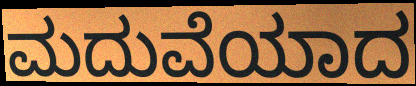
ಮದುವೆಯಾದ